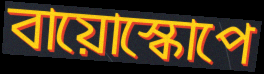
বায়োস্কোপে